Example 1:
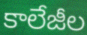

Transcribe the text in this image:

కాలేజీల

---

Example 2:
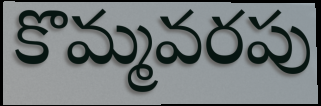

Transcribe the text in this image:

కొమ్మవరపు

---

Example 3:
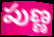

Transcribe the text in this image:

పుణ్ణ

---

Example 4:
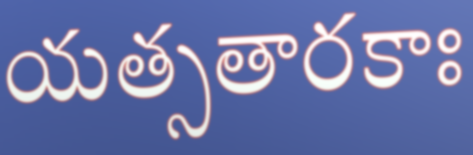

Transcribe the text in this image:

యత్సతారకాః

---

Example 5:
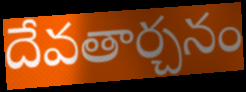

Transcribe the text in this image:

దేవతార్చనం